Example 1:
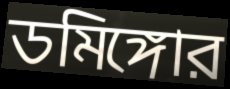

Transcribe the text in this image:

ডমিঙ্গোর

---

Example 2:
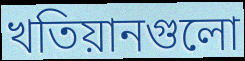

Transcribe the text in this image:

খতিয়ানগুলো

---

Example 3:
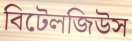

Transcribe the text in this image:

বিটেলজিউস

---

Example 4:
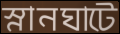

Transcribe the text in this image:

স্নানঘাটে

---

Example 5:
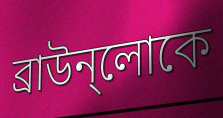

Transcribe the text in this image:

ব্রাউন্লোকে